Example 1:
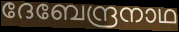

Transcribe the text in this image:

ദേബേന്ദ്രനാഥ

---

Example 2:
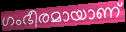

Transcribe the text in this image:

ഗംഭീരമായാണ്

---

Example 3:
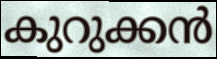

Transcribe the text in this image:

കുറുക്കൻ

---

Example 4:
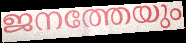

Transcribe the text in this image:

ജനത്തേയും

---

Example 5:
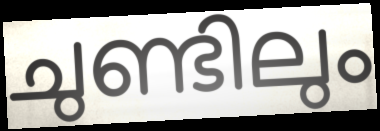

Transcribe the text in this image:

ചുണ്ടിലും